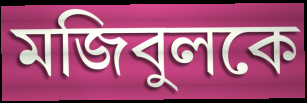
মজিবুলকে